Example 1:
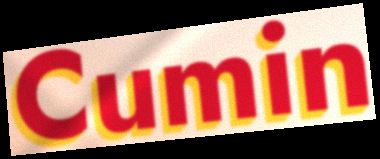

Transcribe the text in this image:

Cumin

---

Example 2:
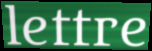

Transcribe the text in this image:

lettre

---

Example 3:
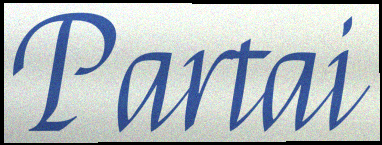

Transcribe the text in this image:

Partai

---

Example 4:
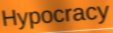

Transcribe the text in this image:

Hypocracy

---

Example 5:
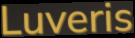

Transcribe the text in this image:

Luveris